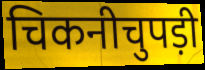
चिकनीचुपड़ी